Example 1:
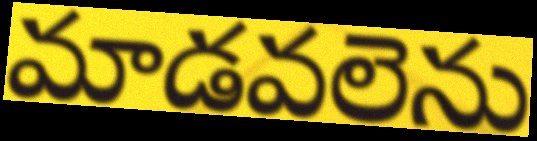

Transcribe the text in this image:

మాడవలెను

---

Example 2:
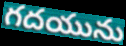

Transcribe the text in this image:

గదయును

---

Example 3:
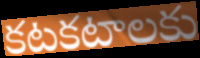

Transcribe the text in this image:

కటకటాలకు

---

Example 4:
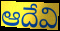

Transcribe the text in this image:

ఆదేవి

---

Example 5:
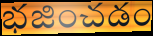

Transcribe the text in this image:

భజించడం